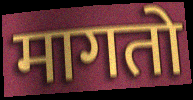
मागतो